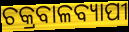
ଚକ୍ରବାଳବ୍ୟାପୀ